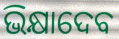
ଭିକ୍ଷାଦେବ